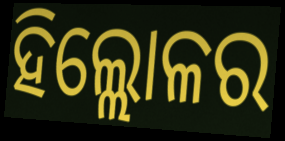
ହିଲ୍ଲୋଳର